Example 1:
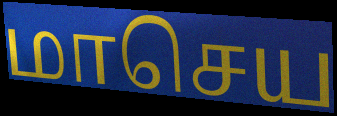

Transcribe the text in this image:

மாசெய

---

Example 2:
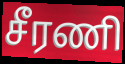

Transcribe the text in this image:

சீரணி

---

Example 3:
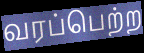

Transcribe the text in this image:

வரப்பெற்ற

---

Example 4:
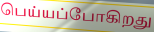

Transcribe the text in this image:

பெய்யப்போகிறது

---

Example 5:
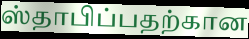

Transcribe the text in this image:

ஸ்தாபிப்பதற்கான